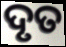
ଦୃତ